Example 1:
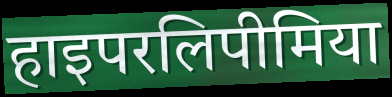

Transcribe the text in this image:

हाइपरलिपीमिया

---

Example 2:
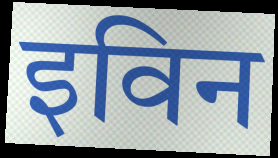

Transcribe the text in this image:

इविन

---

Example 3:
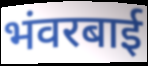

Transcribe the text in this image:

भंवरबाई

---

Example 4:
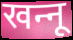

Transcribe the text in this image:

खन्नू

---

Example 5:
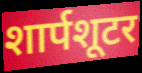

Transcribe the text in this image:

शार्पशूटर